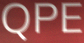
QPE